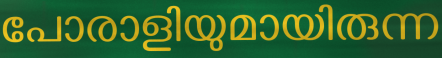
പോരാളിയുമായിരുന്ന